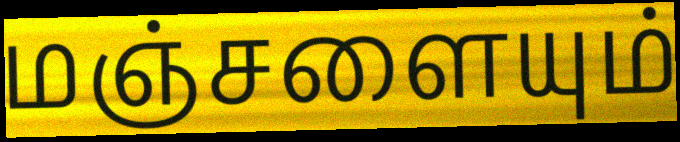
மஞ்சளையும்